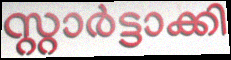
സ്റ്റാർട്ടാക്കി